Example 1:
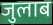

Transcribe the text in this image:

जुलाब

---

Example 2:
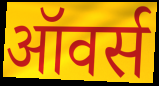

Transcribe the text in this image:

ऑवर्स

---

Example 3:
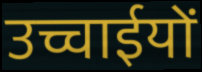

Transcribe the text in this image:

उच्चाईयों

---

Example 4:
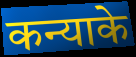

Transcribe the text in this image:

कन्याके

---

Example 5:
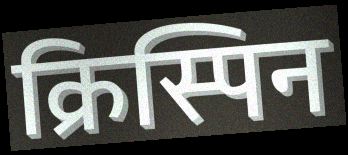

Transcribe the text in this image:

क्रिस्पिन